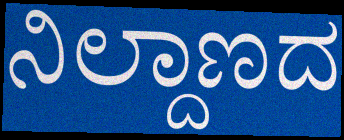
ನಿಲ್ದಾಣದ